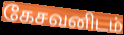
கேசவனிடம்